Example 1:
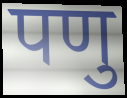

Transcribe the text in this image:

पणु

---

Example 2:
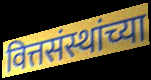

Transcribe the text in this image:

वित्तसंस्थांच्या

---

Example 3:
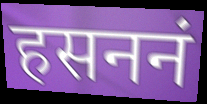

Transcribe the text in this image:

हसननं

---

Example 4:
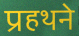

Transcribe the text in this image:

प्रहथने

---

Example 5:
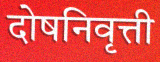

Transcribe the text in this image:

दोषनिवृत्ती